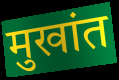
मुखांत